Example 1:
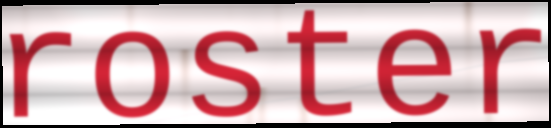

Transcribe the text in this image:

roster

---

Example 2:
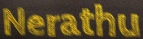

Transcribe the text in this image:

Nerathu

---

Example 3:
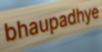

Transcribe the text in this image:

bhaupadhye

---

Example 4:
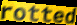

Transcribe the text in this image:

rotted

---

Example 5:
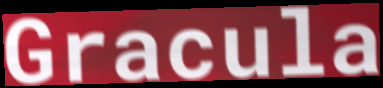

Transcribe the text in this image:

Gracula